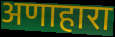
अणाहारा